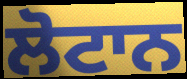
ਲੋਟਾਨ